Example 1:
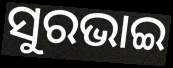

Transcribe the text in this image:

ସୁରଭାଇ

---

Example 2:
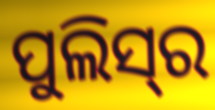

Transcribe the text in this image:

ପୁଲିସ୍‍ର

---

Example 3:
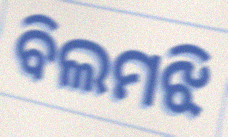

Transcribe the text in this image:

ବିଲମଝି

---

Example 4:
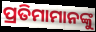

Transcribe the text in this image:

ପ୍ରତିମାମାନଙ୍କୁ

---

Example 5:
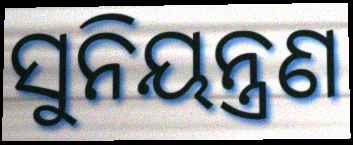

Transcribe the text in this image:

ସୁନିୟନ୍ତ୍ରଣ